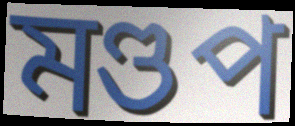
মণ্ডপ